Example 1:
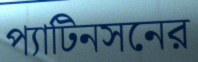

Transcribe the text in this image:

প্যাটিনসনের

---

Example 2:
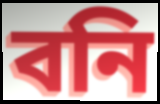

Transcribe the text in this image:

বনি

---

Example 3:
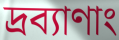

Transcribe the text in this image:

দ্রব্যাণাং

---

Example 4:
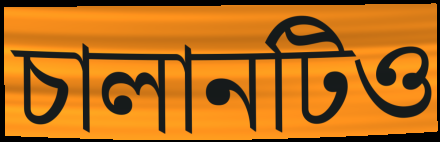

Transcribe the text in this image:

চালানটিও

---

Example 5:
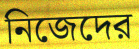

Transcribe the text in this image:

নিজেদের